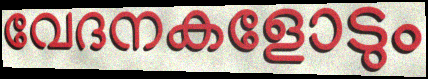
വേദനകളോടും